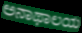
ಅನಾಥಾಲಯ